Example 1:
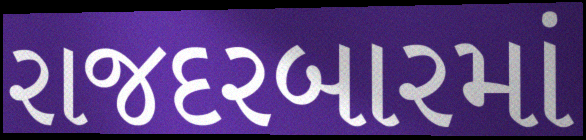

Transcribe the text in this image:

રાજદરબારમાં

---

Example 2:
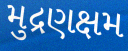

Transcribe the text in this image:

મુદ્રણક્ષમ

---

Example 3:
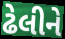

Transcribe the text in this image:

ઢેલીને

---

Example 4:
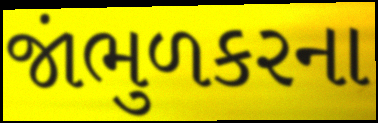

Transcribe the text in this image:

જાંભુળકરના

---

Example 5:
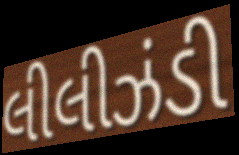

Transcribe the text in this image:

લીલીઝંડી